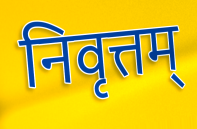
निवृत्तम्